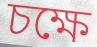
চক্ষে